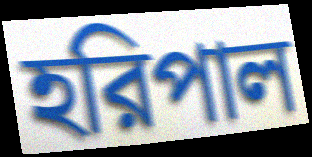
হরিপাল